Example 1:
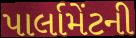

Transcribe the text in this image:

પાર્લામેંટની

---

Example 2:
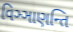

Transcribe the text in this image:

વિઞ્ઞાણન્તિ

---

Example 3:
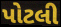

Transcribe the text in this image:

પોટલી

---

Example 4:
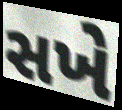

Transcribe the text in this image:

સખે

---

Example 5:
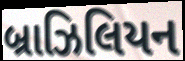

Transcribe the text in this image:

બ્રાઝિલિયન